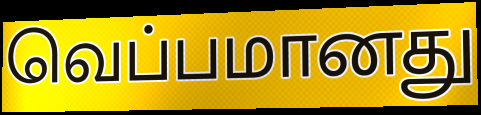
வெப்பமானது